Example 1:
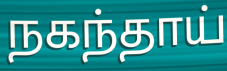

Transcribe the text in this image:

நகந்தாய்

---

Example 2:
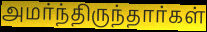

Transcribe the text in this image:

அமர்ந்திருந்தார்கள்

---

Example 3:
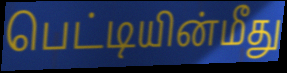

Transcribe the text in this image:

பெட்டியின்மீது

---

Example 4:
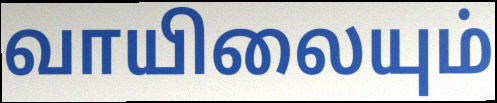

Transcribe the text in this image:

வாயிலையும்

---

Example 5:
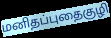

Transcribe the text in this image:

மனிதப்புதைகுழி